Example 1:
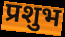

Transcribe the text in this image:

प्रशुभ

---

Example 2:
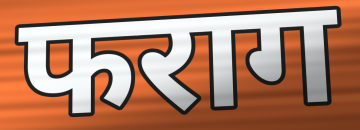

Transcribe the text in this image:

फराग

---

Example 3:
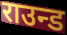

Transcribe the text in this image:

राउन्ड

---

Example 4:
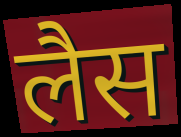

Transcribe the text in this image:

लैस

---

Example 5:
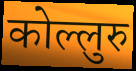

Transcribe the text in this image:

कोल्लुरु